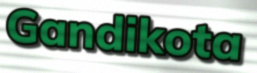
Gandikota